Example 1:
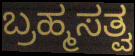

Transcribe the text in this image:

ಬ್ರಹ್ಮಸತ್ವ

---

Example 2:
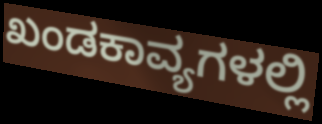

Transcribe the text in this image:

ಖಂಡಕಾವ್ಯಗಳಲ್ಲಿ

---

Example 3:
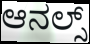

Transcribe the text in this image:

ಆನಲ್ಸ್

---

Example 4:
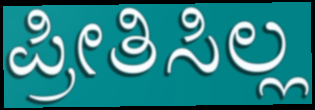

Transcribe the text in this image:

ಪ್ರೀತಿಸಿಲ್ಲ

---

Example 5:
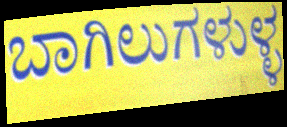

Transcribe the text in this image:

ಬಾಗಿಲುಗಳುಳ್ಳ